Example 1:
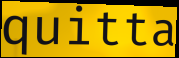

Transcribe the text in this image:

quitta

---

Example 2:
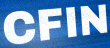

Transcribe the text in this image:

CFIN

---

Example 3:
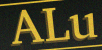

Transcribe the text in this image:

ALu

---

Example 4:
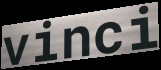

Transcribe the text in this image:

vinci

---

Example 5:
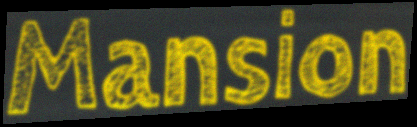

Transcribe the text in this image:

Mansion